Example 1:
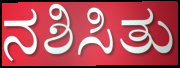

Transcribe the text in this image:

ನಶಿಸಿತು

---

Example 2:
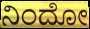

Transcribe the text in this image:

ನಿಂದೋ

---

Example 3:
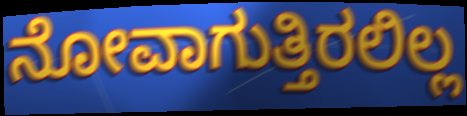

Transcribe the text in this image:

ನೋವಾಗುತ್ತಿರಲಿಲ್ಲ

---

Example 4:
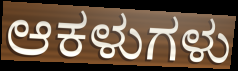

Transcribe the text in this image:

ಆಕಳುಗಳು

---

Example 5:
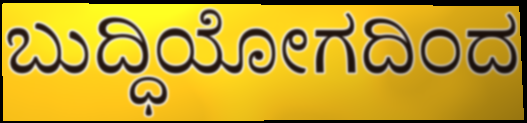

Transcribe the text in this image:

ಬುದ್ಧಿಯೋಗದಿಂದ